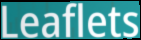
Leaflets